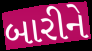
બારીને